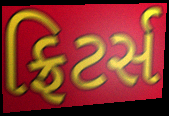
ફ્રિટર્સ